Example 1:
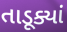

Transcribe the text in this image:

તાડૂક્યાં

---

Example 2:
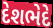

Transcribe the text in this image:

દેશભેદે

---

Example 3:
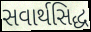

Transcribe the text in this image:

સવાર્થસિદ્ધ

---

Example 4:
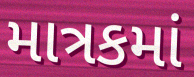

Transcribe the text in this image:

માત્રકમાં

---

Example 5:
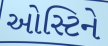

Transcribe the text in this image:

ઓસ્ટિને